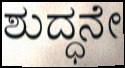
ಶುದ್ಧನೇ